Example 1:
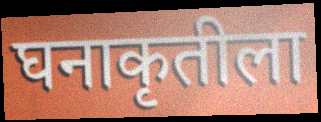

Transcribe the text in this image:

घनाकृतीला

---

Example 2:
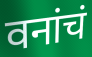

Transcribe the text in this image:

वनांचं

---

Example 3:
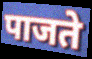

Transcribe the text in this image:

पाजते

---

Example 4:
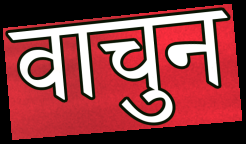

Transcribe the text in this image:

वाचुन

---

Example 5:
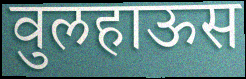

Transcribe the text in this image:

वुलहाऊस